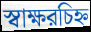
স্বাক্ষরচিহ্ন